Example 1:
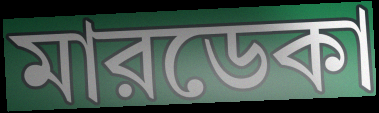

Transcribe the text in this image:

মারডেকা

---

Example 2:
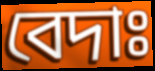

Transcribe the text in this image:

বেদাঃ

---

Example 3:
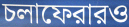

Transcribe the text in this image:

চলাফেরারও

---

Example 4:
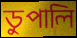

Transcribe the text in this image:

ডুপালি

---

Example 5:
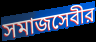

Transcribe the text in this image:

সমাজসেবীর